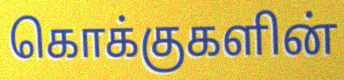
கொக்குகளின்